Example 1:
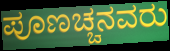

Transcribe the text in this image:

ಪೂಣಚ್ಚನವರು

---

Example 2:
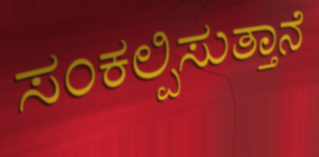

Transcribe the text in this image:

ಸಂಕಲ್ಪಿಸುತ್ತಾನೆ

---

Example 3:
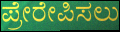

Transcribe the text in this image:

ಪ್ರೇರೇಪಿಸಲು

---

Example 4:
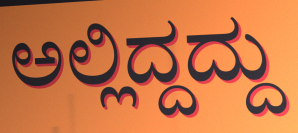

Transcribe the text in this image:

ಅಲ್ಲಿದ್ದದ್ದು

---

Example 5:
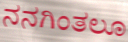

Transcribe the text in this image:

ನನಗಿಂತಲೂ